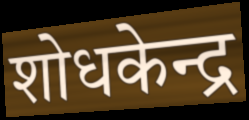
शोधकेन्द्र